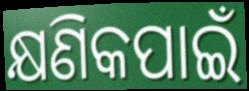
କ୍ଷଣିକପାଇଁ